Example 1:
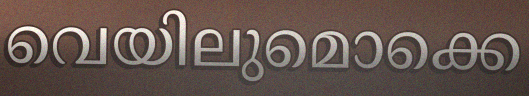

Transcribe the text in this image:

വെയിലുമൊക്കെ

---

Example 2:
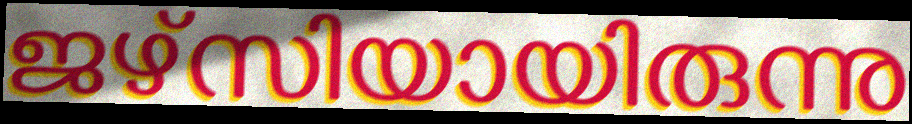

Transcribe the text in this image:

ജഴ്സിയായിരുന്നു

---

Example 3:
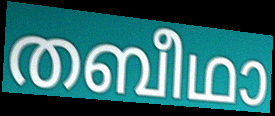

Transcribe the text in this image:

തബീഥാ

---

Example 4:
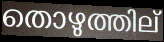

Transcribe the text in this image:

തൊഴുത്തില്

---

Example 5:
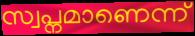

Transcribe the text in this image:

സ്വപ്നമാണെന്ന്